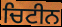
ਚਿਟੀਨ